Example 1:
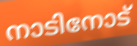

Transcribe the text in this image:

നാടിനോട്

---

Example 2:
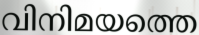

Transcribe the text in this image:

വിനിമയത്തെ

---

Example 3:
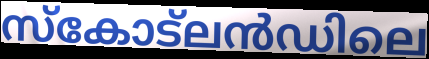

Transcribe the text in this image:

സ്കോട്ലൻഡിലെ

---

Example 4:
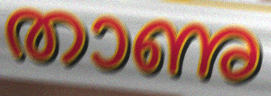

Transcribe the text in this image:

താണു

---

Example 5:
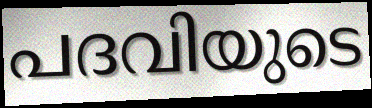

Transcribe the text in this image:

പദവിയുടെ